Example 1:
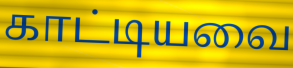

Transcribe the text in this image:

காட்டியவை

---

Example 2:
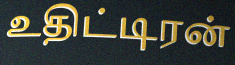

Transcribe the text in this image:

உதிட்டிரன்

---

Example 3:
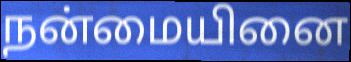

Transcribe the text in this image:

நன்மையினை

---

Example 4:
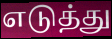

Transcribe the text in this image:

எடுத்து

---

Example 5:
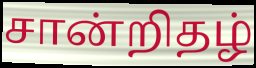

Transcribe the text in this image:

சான்றிதழ்